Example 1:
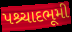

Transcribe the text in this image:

પશ્ર્ચાદભૂમી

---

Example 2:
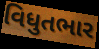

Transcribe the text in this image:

વિધુતભાર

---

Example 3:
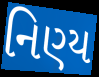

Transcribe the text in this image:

નિણ્ય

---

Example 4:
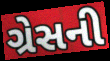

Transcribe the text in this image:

ગ્રેસની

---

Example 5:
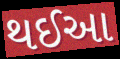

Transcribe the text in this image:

થઈઆ